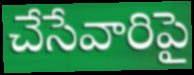
చేసేవారిపై